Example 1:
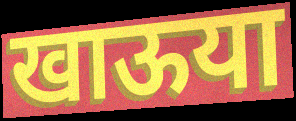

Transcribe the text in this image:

खाऊया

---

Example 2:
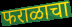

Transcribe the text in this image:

फराळाचा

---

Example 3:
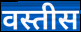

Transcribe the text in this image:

वस्तीस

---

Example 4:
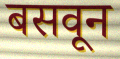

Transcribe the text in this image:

बसवून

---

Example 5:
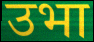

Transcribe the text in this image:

उभा